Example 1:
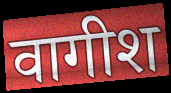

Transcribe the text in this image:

वागीश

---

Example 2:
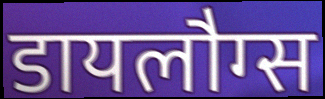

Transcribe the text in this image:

डायलौग्स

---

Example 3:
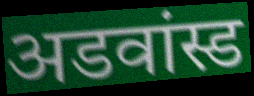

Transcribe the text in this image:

अडवांस्ड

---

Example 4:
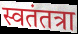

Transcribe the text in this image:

स्वतंतत्रा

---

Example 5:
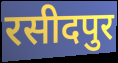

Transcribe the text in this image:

रसीदपुर